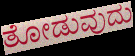
ತೋಡುವುದು